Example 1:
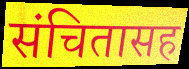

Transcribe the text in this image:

संचितासह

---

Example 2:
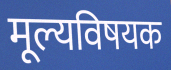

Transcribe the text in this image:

मूल्यविषयक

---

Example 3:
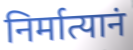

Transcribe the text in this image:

निर्मात्यानं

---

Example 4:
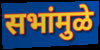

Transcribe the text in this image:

सभांमुळे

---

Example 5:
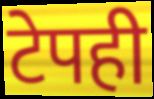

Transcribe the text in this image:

टेपही